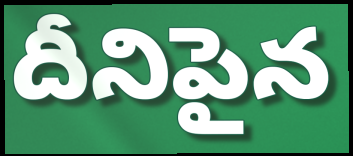
దీనిపైన